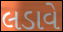
લડાવે